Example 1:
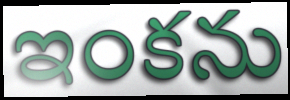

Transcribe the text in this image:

ఇంకను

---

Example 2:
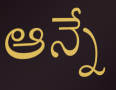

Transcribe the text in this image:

ఆన్నే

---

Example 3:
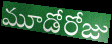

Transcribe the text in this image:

మూడోరోజు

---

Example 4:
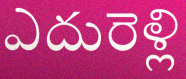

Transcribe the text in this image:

ఎదురెళ్లి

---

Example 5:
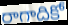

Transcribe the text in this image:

రాగాదికో